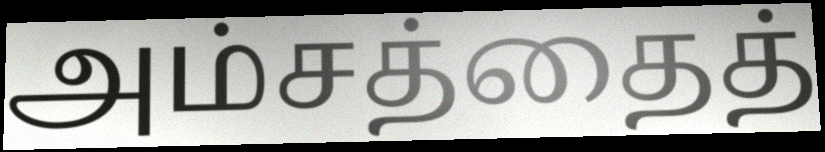
அம்சத்தைத்